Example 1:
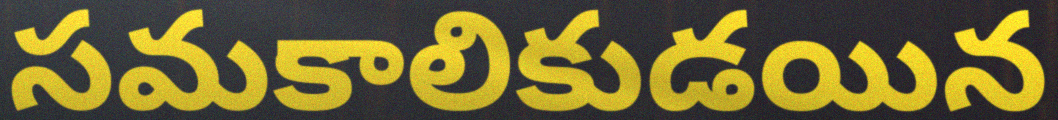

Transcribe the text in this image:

సమకాలికుడయిన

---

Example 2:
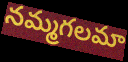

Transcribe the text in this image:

నమ్మగలమా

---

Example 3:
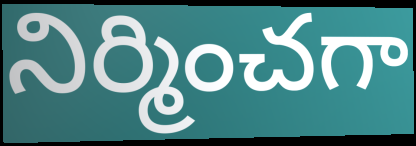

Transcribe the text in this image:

నిర్మించగా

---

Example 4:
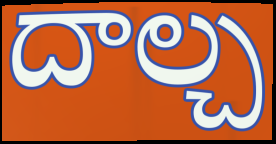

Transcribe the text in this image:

దాల్చ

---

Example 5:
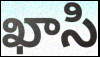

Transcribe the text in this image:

ఖాసి